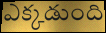
ఎక్కడుంది